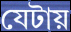
যেটায়